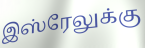
இஸ்ரேலுக்கு